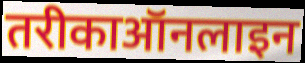
तरीकाऑनलाइन